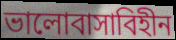
ভালোবাসাবিহীন